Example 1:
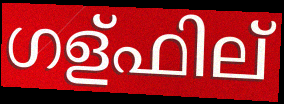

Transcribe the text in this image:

ഗള്ഫില്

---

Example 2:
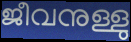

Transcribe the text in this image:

ജീവനുള്ളു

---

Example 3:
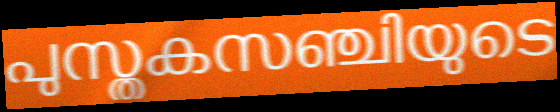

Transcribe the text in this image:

പുസ്തകസഞ്ചിയുടെ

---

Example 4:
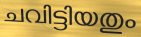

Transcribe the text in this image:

ചവിട്ടിയതും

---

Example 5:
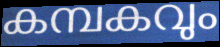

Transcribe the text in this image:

കമ്പകവും